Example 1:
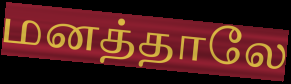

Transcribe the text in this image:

மனத்தாலே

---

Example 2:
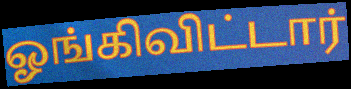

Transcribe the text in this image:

ஓங்கிவிட்டார்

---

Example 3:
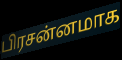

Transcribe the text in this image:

பிரசன்னமாக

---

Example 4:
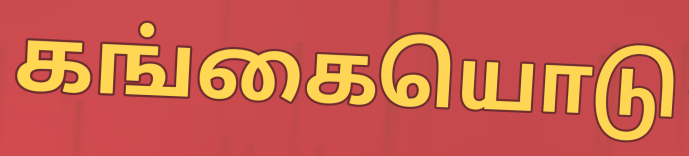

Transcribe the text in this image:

கங்கையொடு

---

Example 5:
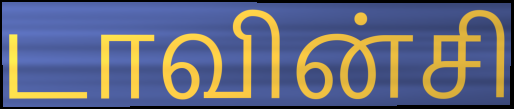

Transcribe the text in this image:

டாவின்சி